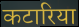
कटारिया